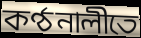
কণ্ঠনালীতে